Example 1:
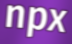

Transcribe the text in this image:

npx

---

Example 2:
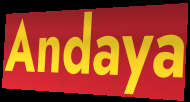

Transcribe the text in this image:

Andaya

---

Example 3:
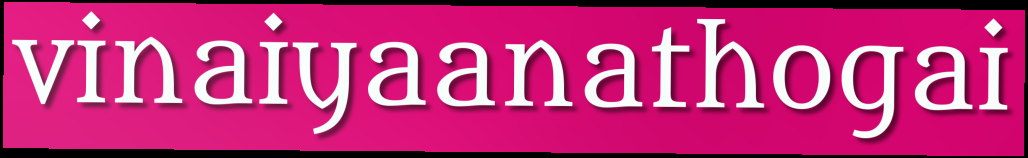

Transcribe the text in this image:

vinaiyaanathogai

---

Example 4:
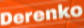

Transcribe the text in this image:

Derenko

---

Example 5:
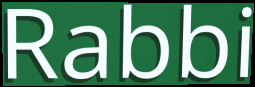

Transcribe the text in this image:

Rabbi